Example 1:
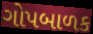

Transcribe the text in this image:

ગોપબાળક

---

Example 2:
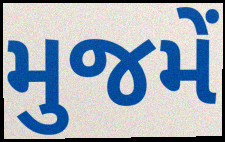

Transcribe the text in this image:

મુજમેં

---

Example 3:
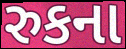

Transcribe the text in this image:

રુકના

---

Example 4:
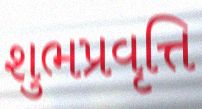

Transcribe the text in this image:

શુભપ્રવૃત્તિ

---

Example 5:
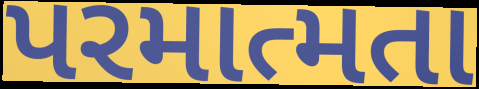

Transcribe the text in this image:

પરમાત્મતા